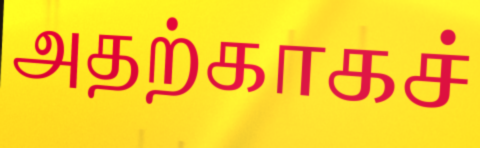
அதற்காகச்